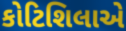
કોટિશિલાએ